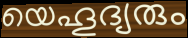
യെഹൂദ്യരും